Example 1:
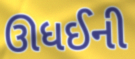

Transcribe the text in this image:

ઊધઈની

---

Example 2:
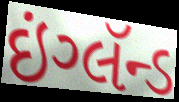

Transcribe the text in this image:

ઇંગ્લૅન્ડ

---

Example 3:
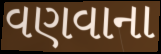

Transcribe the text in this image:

વણવાના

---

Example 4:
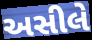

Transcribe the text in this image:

અસીલે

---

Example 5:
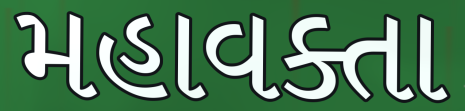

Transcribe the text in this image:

મહાવક્તા